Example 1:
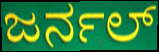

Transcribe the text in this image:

ಜರ್ನಲ್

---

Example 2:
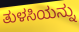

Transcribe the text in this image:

ತುಳಸಿಯನ್ನು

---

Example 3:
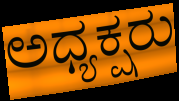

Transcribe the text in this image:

ಅಧ್ಯಕ್ಷರು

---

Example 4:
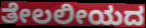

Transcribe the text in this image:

ತೇಲಲೀಯದ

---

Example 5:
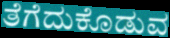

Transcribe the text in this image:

ತೆಗೆದುಕೊಡುವ